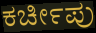
ಕರ್ಚೀಪು